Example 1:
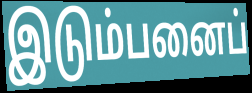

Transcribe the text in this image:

இடும்பனைப்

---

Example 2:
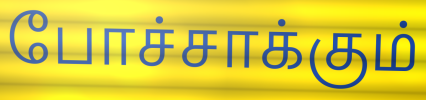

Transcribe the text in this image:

போச்சாக்கும்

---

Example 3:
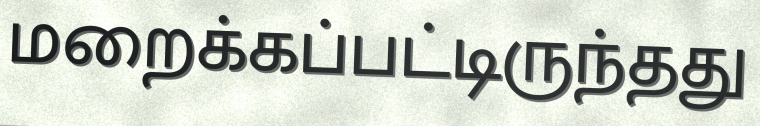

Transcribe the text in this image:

மறைக்கப்பட்டிருந்தது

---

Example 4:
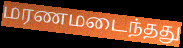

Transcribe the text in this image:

மரணமடைந்தது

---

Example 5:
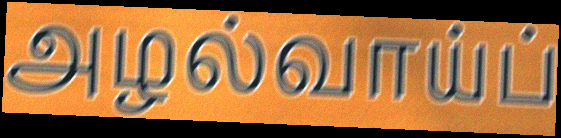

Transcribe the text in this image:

அழல்வாய்ப்